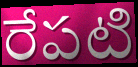
రేపటి